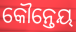
କୌନ୍ତେୟ